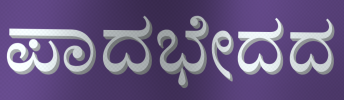
ಪಾದಭೇದದ